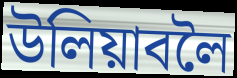
উলিয়াবলৈ